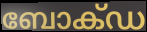
ബോക്ഡ